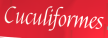
Cuculiformes